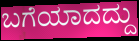
ಬಗೆಯಾದದ್ದು